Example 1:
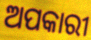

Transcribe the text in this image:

ଅପକାରୀ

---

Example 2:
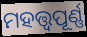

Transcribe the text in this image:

ମହତ୍ତ୍ୱପୂର୍ଣ୍ଣ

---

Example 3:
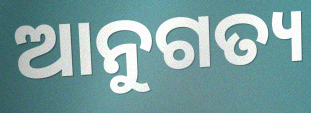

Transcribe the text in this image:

ଆନୁଗତ୍ୟ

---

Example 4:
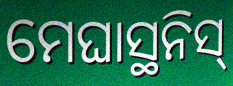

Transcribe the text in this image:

ମେଘାସ୍ଥନିସ୍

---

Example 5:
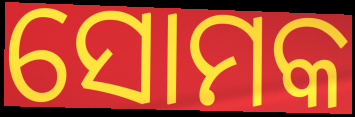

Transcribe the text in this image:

ସୋମକ